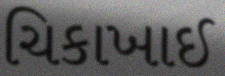
ચિકાખાઈ